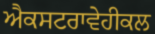
ਐਕਸਟਰਾਵੇਹੀਕਲ